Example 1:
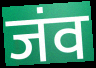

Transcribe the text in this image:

जंव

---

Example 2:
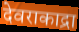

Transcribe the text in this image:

देवराकाद्रा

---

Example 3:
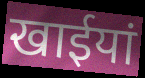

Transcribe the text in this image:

खाईयां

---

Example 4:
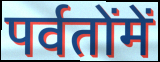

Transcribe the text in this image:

पर्वतोंमें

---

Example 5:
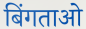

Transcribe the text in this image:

बिंगताओ